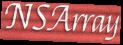
NSArray